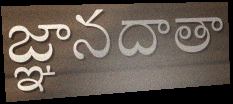
జ్ఞానదాతా